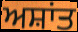
ਅਸ਼ਾਂਤ